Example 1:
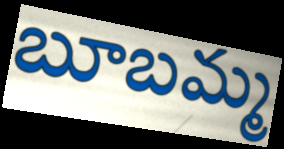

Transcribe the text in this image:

బూబమ్మ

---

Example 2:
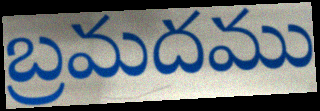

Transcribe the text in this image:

బ్రమదము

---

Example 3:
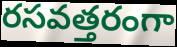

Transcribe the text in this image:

రసవత్తరంగా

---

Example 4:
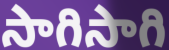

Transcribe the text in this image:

సాగిసాగి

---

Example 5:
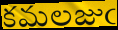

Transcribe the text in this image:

కమలజుఁ